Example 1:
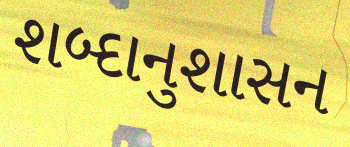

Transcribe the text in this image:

શબ્દાનુશાસન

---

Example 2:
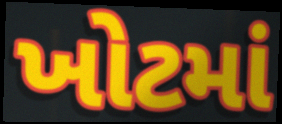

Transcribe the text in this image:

ખોટમાં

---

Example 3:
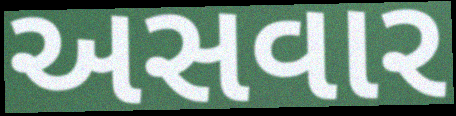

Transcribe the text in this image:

અસવાર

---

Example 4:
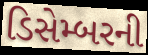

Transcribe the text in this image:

ડિસેમ્બરની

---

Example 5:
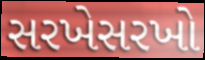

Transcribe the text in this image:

સરખેસરખો